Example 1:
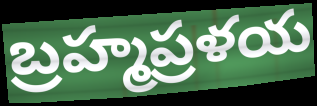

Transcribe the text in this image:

బ్రహ్మప్రళయ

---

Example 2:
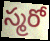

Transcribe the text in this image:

స్మరో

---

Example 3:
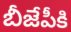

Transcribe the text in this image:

బీజేపీకి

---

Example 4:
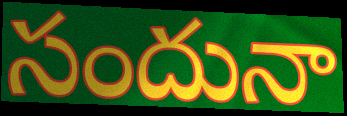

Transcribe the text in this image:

సందునా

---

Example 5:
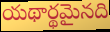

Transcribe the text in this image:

యథార్థమైనది